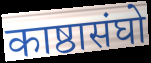
काष्ठासंघो